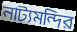
নাট্যমন্দির